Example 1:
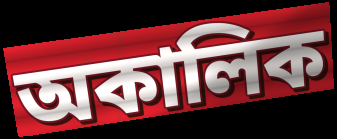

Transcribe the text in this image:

অকালিক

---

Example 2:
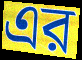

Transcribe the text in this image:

এর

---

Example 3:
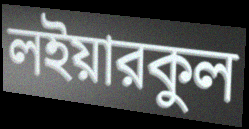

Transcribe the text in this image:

লইয়ারকুল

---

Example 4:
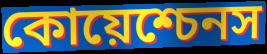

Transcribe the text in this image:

কোয়েশ্চেনস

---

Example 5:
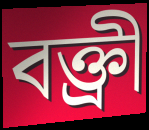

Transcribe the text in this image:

বক্ত্রী